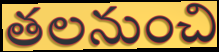
తలనుంచి